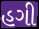
હગી